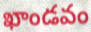
ఖాండవం